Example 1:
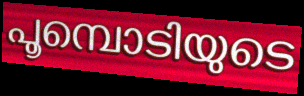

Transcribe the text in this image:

പൂമ്പൊടിയുടെ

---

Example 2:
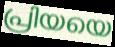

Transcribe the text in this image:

പ്രിയയെ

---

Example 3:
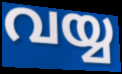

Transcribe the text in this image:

വയ്യ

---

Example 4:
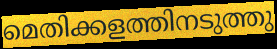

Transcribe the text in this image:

മെതിക്കളത്തിനടുത്തു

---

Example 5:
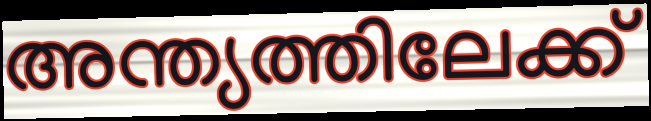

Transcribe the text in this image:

അന്ത്യത്തിലേക്ക്